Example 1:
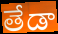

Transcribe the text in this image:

తేడా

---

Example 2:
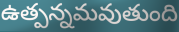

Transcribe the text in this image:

ఉత్పన్నమవుతుంది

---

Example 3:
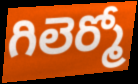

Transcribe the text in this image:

గిలెర్మో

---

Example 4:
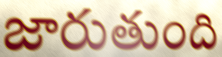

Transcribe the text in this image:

జారుతుంది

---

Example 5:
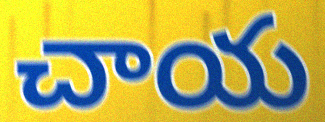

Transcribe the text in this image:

చాయ